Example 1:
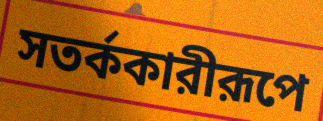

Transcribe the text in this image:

সতর্ককারীরূপে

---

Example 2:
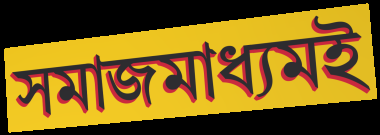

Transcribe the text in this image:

সমাজমাধ্যমই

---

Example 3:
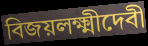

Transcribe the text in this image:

বিজয়লক্ষ্মীদেবী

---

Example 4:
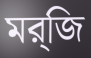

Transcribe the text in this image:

মর্‌জি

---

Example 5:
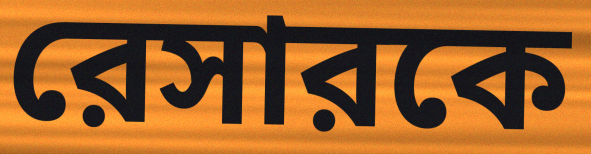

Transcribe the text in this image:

রেসারকে